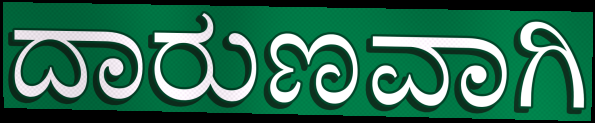
ದಾರುಣವಾಗಿ